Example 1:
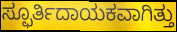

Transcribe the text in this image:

ಸ್ಫೂರ್ತಿದಾಯಕವಾಗಿತ್ತು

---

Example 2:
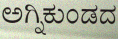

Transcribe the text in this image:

ಅಗ್ನಿಕುಂಡದ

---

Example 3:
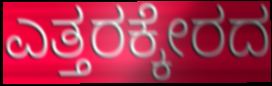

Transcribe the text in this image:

ಎತ್ತರಕ್ಕೇರದ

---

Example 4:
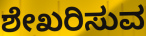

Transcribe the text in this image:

ಶೇಖರಿಸುವ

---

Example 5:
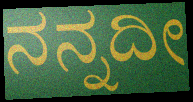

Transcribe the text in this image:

ನನ್ನದೀ